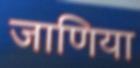
जाणिया